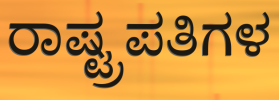
ರಾಷ್ಟ್ರಪತಿಗಳ